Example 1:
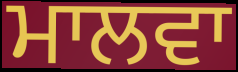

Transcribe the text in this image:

ਮਾਲਵਾ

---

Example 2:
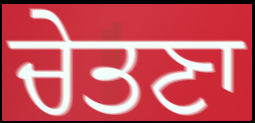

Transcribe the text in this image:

ਚੇਤਣਾ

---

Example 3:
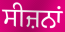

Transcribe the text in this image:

ਸੀਜ਼ਨਾਂ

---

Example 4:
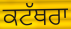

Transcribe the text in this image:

ਕਟੱਥਰਾ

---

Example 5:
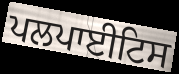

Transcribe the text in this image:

ਪਲਪਾਈਟਿਸ